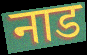
नाड